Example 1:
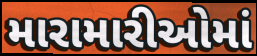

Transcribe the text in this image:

મારામારીઓમાં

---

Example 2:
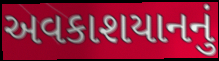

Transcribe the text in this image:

અવકાશયાનનું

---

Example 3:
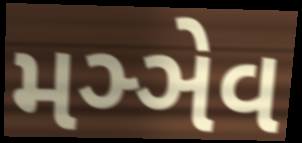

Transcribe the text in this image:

મઞ્ઞેવ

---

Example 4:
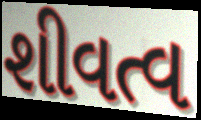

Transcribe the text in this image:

શીવત્વ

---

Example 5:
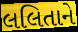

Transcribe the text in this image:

લલિતાને